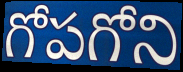
గోపగోని